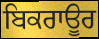
ਬਿਕਰਾਊਰ